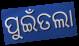
ପୁଇଁତଲା